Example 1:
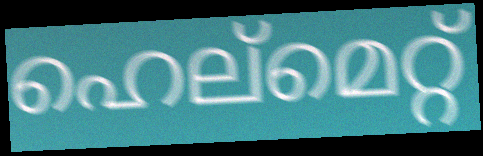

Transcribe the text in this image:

ഹെല്മെറ്റ്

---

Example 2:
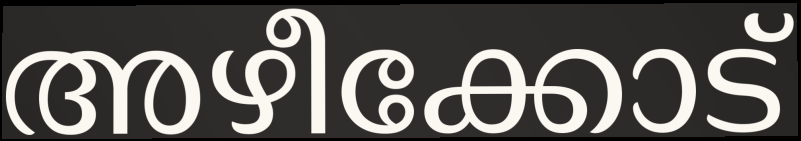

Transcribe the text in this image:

അഴീക്കോട്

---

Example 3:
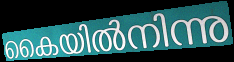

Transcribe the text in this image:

കൈയിൽനിന്നു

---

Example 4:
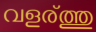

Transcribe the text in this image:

വളര്ത്തു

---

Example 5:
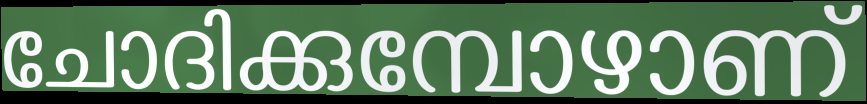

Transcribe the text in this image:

ചോദിക്കുമ്പോഴാണ്